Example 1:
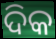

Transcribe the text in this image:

ଦିକ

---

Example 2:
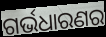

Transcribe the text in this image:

ଗର୍ଭଧାରଣର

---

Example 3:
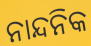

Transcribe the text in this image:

ନାନ୍ଦନିକ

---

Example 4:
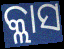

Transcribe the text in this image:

କ୍ଲାସ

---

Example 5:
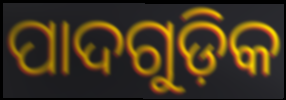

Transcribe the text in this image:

ପାଦଗୁଡ଼ିକ